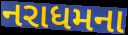
નરાધમના